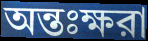
অন্তঃক্ষরা